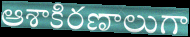
ఆశాకిరణాలుగా